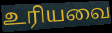
உரியவை